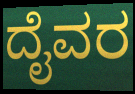
ದೈವರ